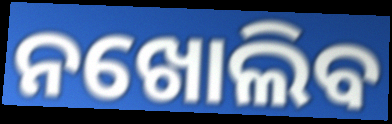
ନଖୋଲିବ